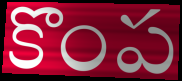
కొంప